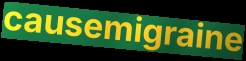
causemigraine